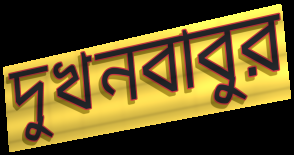
দুখনবাবুর